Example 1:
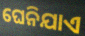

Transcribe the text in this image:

ଘେନିଯାଏ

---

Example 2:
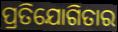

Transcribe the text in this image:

ପ୍ରତିଯୋଗିତାର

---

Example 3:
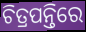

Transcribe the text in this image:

ଚିତ୍ରପନ୍ତିରେ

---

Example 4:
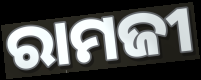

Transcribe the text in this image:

ରାମଜୀ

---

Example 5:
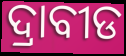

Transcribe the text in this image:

ଦ୍ରାବୀଡ